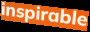
inspirable